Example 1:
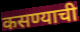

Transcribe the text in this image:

कसण्याची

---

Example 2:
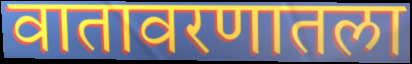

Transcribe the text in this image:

वातावरणातला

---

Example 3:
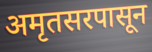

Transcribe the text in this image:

अमृतसरपासून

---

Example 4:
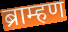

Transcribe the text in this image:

ब्राम्हण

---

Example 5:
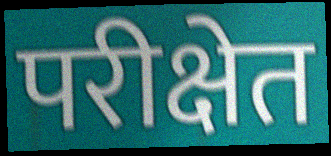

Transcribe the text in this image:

परीक्षेत